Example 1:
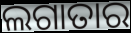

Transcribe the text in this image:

ଲଗାତାର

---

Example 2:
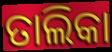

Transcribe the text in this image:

ତାଲିକା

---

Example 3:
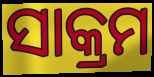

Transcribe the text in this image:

ସାକ୍ରମ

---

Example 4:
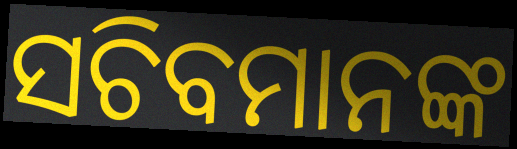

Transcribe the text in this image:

ସଚିବମାନଙ୍କ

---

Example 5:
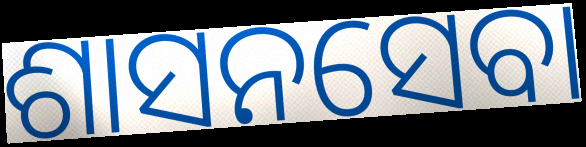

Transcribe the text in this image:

ଶାସନସେବା